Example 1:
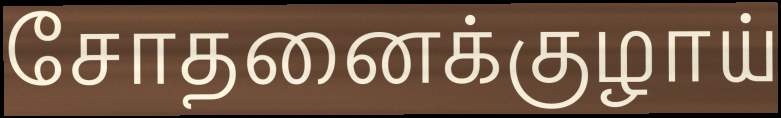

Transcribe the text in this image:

சோதனைக்குழாய்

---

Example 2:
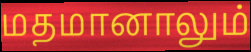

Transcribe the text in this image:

மதமானாலும்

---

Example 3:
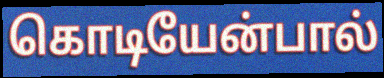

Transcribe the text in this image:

கொடியேன்பால்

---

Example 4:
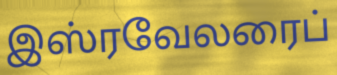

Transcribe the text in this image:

இஸ்ரவேலரைப்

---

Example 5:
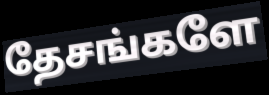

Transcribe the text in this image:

தேசங்களே